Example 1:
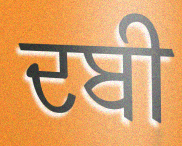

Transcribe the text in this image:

ਦਬੀ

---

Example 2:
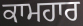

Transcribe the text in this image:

ਕਾਮਹਾਰ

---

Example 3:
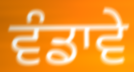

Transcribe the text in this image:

ਵੰਡਾਵੇ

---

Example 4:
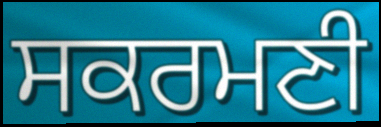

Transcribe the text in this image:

ਸਕਰਮਣੀ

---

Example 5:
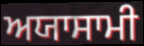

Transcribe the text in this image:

ਅਯਾਸਾਮੀ